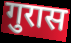
गुरास